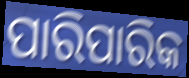
ପାରିପାରିକ